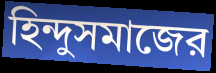
হিন্দুসমাজের